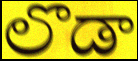
లొడా